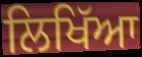
ਲਿਖਿੱਆ